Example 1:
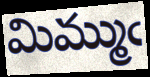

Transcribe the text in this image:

మిమ్ముఁ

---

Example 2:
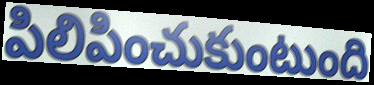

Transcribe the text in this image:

పిలిపించుకుంటుంది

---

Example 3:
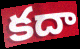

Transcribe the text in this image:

కదా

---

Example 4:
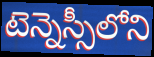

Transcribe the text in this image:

టెన్నెస్సీలోని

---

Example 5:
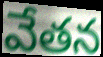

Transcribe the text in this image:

వేతన